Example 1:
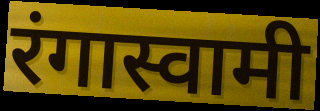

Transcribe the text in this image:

रंगास्वामी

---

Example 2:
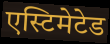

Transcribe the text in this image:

एस्टिमेटेड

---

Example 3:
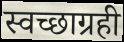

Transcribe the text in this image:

स्वच्छाग्रही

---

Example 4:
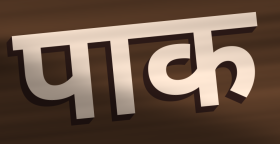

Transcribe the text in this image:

पाक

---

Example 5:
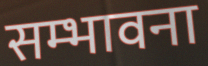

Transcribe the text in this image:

सम्भावना